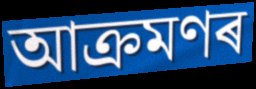
আক্ৰমণৰ